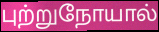
புற்றுநோயால்